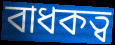
বাধকত্ব